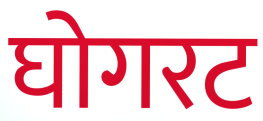
घोगरट